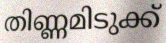
തിണ്ണമിടുക്ക്